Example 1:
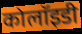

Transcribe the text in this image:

कोलॉइडी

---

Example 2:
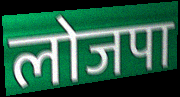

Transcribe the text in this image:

लोजपा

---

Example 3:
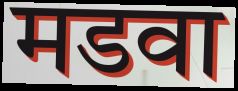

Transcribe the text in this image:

मडवा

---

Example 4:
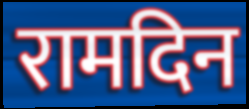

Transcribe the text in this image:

रामदिन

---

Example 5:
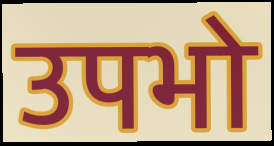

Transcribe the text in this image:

उपभो